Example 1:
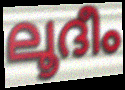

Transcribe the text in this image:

ലൂദീം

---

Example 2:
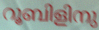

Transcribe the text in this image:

റൂബിളിനു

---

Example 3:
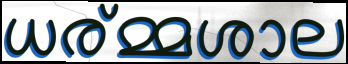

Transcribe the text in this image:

ധര്മ്മശാല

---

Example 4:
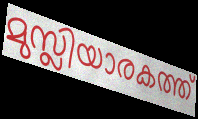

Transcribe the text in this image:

മുസ്ലിയാരകത്ത്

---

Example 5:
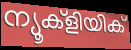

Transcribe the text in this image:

ന്യൂക്ളിയിക്